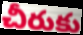
చీరుకు